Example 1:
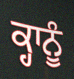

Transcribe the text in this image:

ਕ੍ਹਾਨੂੰ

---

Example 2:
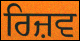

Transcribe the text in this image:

ਰਿਜ਼ਵ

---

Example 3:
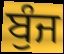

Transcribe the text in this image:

ਬੁੰਜ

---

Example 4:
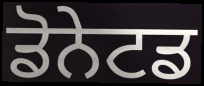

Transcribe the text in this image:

ਡੋਨੇਟਡ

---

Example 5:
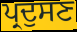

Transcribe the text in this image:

ਪ੍ਰਦੁਸਣ